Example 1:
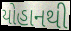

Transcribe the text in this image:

યોહાનથી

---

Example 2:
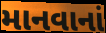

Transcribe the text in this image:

માનવાનાં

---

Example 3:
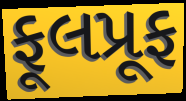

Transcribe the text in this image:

ફૂલપ્રૂફ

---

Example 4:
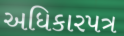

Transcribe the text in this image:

અધિકારપત્ર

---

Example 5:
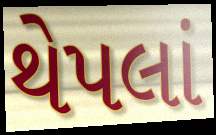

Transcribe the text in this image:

થેપલાં